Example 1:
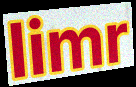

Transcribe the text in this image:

limr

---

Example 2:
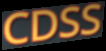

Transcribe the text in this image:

CDSS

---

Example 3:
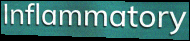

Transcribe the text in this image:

Inflammatory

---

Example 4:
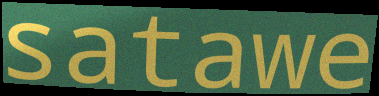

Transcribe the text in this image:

satawe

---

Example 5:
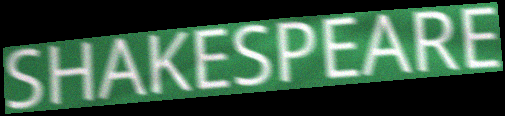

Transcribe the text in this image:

SHAKESPEARE